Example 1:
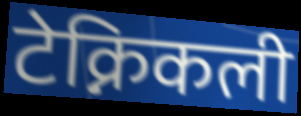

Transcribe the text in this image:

टेक्निकली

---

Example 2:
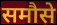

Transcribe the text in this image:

समौसे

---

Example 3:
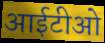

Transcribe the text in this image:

आईटीओ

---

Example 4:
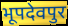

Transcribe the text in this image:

भूपदेवपुर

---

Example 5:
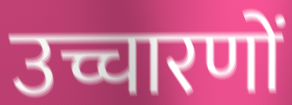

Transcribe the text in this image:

उच्चारणों